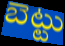
బెట్టు